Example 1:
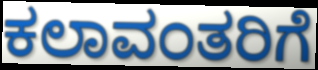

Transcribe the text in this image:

ಕಲಾವಂತರಿಗೆ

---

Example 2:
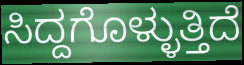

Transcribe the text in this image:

ಸಿದ್ದಗೊಳ್ಳುತ್ತಿದೆ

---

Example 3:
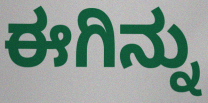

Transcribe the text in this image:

ಈಗಿನ್ನು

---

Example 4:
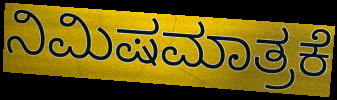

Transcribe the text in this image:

ನಿಮಿಷಮಾತ್ರಕೆ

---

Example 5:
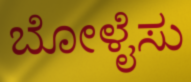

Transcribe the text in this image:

ಬೋಳೈಸು